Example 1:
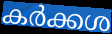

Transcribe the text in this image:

കർക്കശ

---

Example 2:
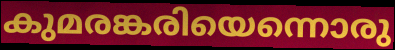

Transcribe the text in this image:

കുമരങ്കരിയെന്നൊരു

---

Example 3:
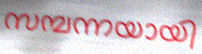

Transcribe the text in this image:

സമ്പന്നയായി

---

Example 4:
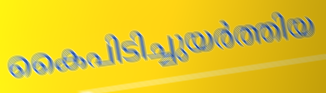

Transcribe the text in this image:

കൈപിടിച്ചുയർത്തിയ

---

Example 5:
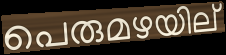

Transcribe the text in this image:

പെരുമഴയില്